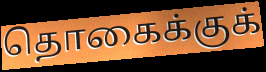
தொகைக்குக்